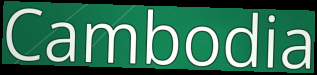
Cambodia